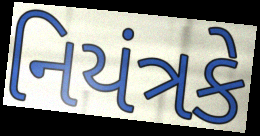
નિયંત્રકે